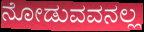
ನೋಡುವವನಲ್ಲ